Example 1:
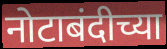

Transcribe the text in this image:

नोटाबंदीच्या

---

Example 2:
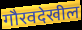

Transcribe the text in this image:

गौरवदेखील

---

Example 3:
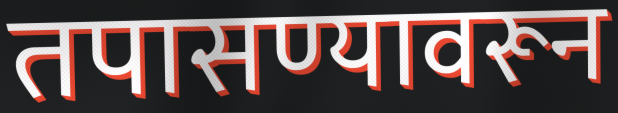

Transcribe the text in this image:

तपासण्यावरून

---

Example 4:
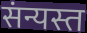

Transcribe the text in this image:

संन्यस्त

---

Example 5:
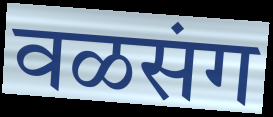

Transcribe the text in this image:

वळसंग